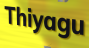
Thiyagu